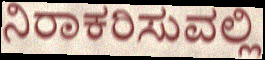
ನಿರಾಕರಿಸುವಲ್ಲಿ